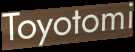
Toyotomi